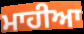
ਮਾਹੀਆ